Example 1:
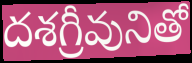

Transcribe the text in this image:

దశగ్రీవునితో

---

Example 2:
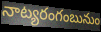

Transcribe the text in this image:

నాట్యరంగంబునుం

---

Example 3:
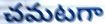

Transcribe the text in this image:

చమటగా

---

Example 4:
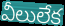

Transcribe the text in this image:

వీలులేక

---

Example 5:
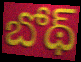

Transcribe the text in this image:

బోథ్